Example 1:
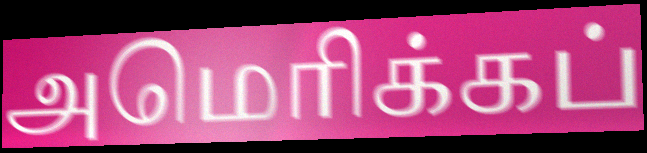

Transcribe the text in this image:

அமெரிக்கப்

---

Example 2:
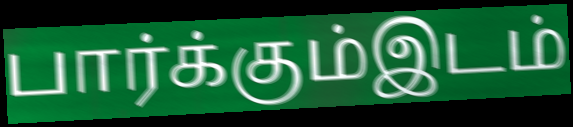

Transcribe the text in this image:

பார்க்கும்இடம்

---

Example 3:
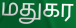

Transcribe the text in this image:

மதுகர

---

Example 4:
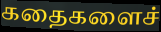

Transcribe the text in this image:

கதைகளைச்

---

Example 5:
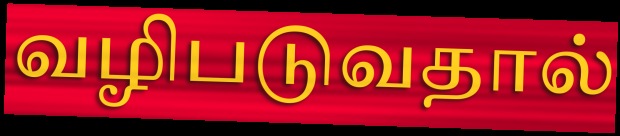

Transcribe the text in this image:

வழிபடுவதால்